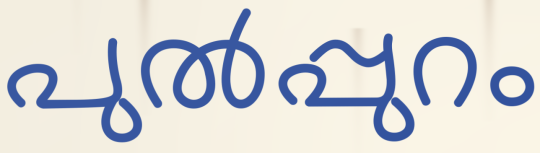
പുൽപ്പുറം